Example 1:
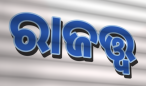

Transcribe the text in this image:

ରାଜତ୍ତ୍ୱ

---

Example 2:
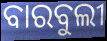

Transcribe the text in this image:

ବାରବୁଲୀ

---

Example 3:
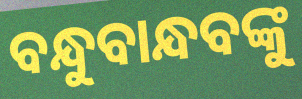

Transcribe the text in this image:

ବନ୍ଧୁବାନ୍ଧବଙ୍କୁ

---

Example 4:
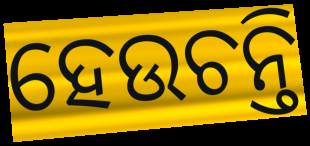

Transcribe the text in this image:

ହେଉଚନ୍ତି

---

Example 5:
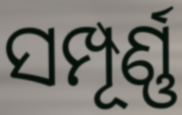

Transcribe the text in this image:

ସମ୍ପୂର୍ଣ୍ଣ